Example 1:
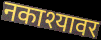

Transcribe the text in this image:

नकाश्यावर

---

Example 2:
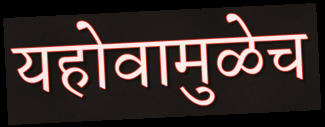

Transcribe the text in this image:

यहोवामुळेच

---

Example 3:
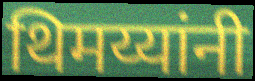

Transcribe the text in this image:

थिमय्यांनी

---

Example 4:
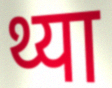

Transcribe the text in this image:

थ्या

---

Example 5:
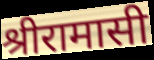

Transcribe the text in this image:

श्रीरामासी